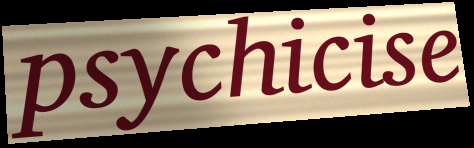
psychicise